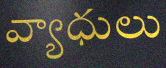
వ్యాధులు